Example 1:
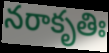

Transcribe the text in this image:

నరాకృతిః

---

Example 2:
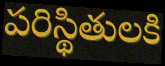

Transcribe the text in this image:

పరిస్థితులకి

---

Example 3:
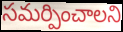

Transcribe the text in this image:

సమర్పించాలని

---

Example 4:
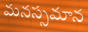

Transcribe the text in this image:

మనస్సమాన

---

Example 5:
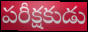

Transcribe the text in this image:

పరీక్షకుడు